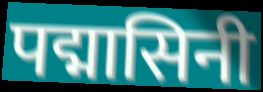
पद्मासिनी